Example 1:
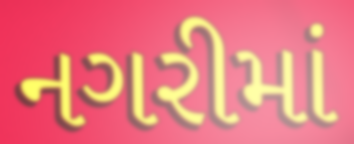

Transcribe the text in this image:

નગરીમાં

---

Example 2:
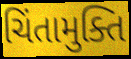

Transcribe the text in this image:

ચિંતામુક્તિ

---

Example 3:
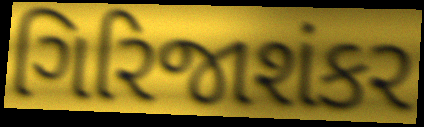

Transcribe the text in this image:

ગિરિજાશંકર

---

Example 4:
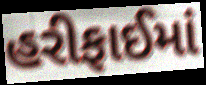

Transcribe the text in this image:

હરીફાઈમાં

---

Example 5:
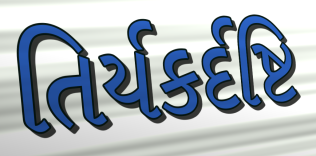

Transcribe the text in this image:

તિર્યકર્દષ્ટિ